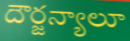
దౌర్జన్యాలూ